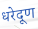
धरेदूण